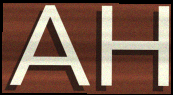
AH